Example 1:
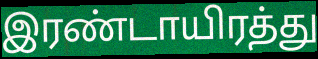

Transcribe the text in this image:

இரண்டாயிரத்து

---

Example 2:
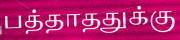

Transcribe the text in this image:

பத்தாததுக்கு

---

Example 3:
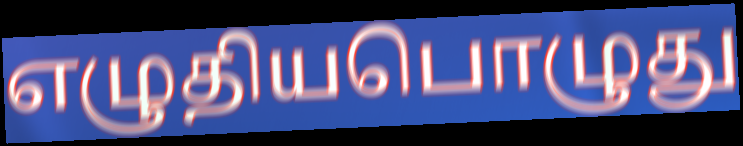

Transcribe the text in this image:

எழுதியபொழுது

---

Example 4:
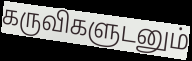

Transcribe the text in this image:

கருவிகளுடனும்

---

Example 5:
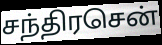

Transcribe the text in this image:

சந்திரசென்